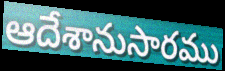
ఆదేశానుసారము